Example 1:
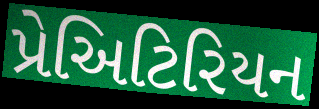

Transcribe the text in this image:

પ્રેઅિટિરિયન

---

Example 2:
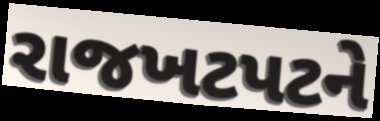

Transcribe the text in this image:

રાજખટપટને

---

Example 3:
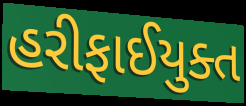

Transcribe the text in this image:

હરીફાઈયુક્ત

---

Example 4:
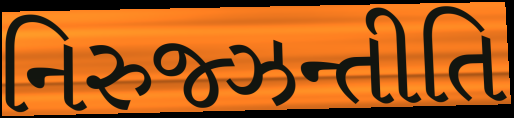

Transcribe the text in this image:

નિરુજ્ઝન્તીતિ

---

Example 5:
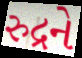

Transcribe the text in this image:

રુદ્રને